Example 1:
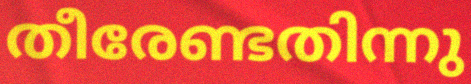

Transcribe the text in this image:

തീരേണ്ടതിന്നു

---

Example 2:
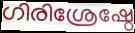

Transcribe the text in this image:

ഗിരിശ്രേഷ്ഠേ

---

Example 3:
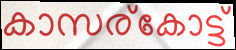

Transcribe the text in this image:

കാസര്കോട്ട്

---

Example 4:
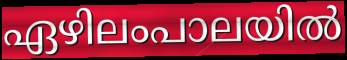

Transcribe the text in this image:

ഏഴിലംപാലയിൽ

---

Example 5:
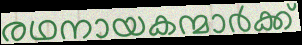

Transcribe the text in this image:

രഥനായകന്മാർക്ക്